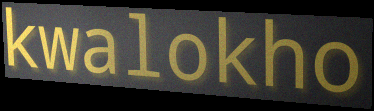
kwalokho